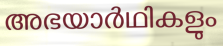
അഭയാർഥികളും